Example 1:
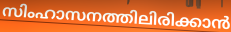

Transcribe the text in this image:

സിംഹാസനത്തിലിരിക്കാൻ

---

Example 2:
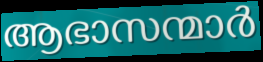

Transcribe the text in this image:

ആഭാസന്മാർ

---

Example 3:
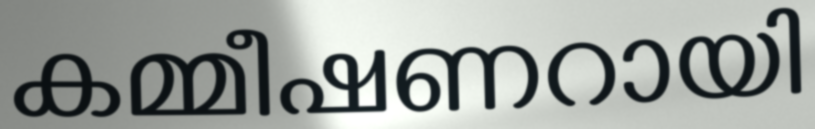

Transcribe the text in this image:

കമ്മീഷണറായി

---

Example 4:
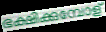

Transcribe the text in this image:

ഭക്ഷിക്കുമ്പോള്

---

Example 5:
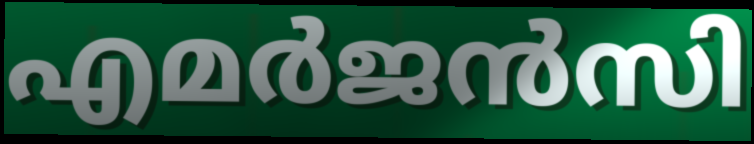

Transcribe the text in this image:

എമർജൻസി